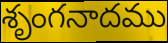
శృంగనాదము